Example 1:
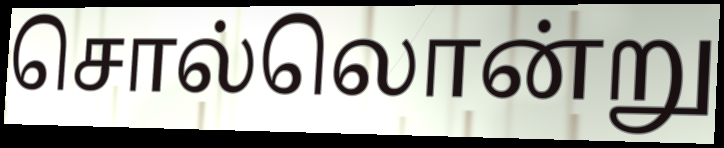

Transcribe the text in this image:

சொல்லொன்று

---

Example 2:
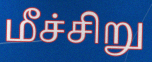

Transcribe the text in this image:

மீச்சிறு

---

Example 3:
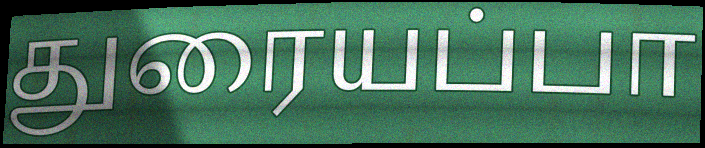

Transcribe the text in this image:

துரையப்பா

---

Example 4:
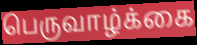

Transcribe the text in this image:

பெருவாழ்க்கை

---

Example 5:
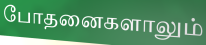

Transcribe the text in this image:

போதனைகளாலும்